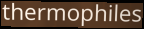
thermophiles